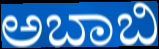
ಅಬಾಬಿ